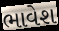
ભાવેશ